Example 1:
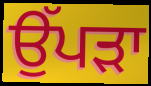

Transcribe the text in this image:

ਉੱਪੜਾ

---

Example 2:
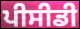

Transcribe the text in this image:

ਪੀਸੀਡੀ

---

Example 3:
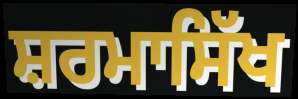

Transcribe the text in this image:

ਸ਼ਰਮਾਸਿੱਖ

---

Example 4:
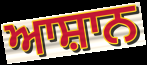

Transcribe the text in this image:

ਆਸ਼ਾਨ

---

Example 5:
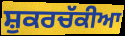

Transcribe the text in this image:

ਸ਼ੁਕਰਚੱਕੀਆ